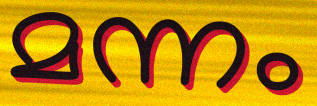
മന്നം